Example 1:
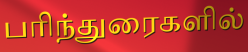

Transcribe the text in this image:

பரிந்துரைகளில்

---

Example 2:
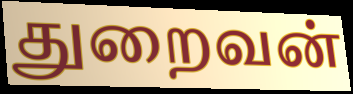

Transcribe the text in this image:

துறைவன்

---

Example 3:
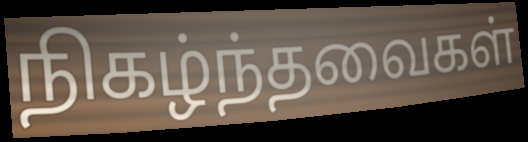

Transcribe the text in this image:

நிகழ்ந்தவைகள்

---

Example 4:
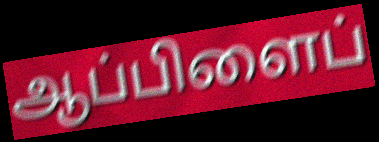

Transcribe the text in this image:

ஆப்பிளைப்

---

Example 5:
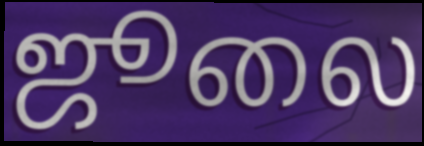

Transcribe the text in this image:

ஜூலை